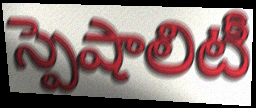
స్పెషాలిటీ